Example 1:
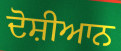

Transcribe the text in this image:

ਦੋਸ਼ੀਆਨ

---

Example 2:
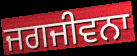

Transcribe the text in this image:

ਜਗਜੀਵਨਾ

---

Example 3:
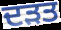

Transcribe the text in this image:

ਦੜਤ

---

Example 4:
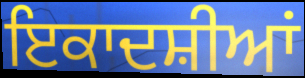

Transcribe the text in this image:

ਇਕਾਦਸ਼ੀਆਂ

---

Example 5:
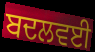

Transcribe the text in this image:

ਬਦਲਵਈ